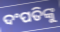
ଦଂପତିଙ୍କୁ